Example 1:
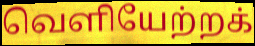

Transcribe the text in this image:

வெளியேற்றக்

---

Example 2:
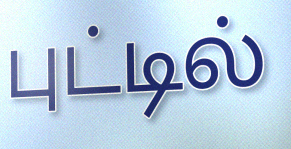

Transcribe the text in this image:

புட்டில்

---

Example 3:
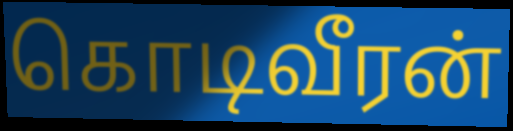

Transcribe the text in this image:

கொடிவீரன்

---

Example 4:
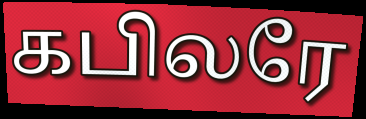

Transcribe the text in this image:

கபிலரே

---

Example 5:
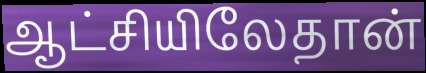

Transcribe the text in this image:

ஆட்சியிலேதான்